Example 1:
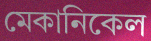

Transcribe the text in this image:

মেকানিকেল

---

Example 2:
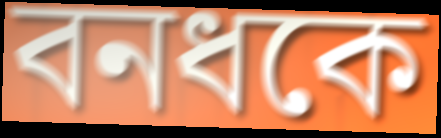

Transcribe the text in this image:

বনধকে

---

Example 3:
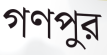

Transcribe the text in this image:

গণপুর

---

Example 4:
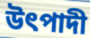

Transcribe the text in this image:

উৎপাদী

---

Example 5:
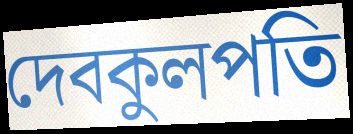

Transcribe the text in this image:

দেবকুলপতি